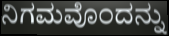
ನಿಗಮವೊಂದನ್ನು